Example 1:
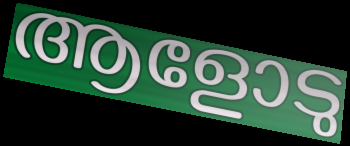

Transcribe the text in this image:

ആളോടു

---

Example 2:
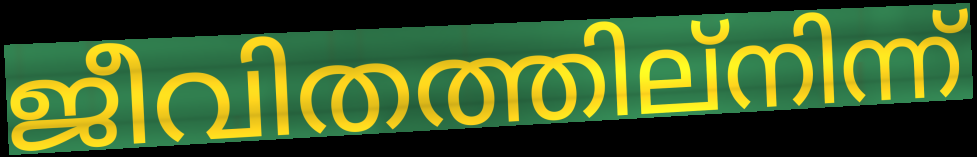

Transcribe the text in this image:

ജീവിതത്തില്നിന്ന്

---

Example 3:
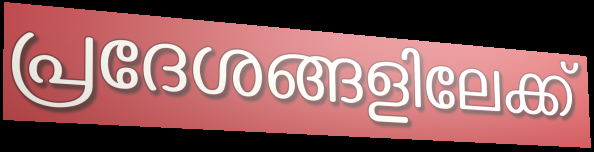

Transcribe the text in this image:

പ്രദേശങ്ങളിലേക്ക്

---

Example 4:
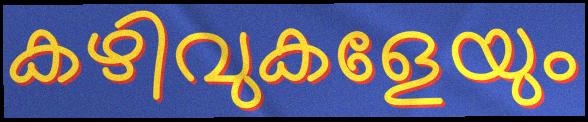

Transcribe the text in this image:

കഴിവുകളേയും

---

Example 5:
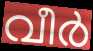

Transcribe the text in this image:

വീർ